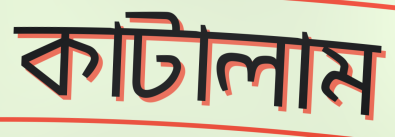
কাটালাম